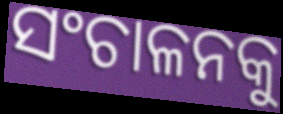
ସଂଚାଳନକୁ